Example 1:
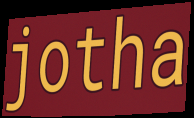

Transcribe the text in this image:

jotha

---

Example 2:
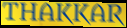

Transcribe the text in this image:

THAKKAR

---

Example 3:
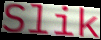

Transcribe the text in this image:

Slik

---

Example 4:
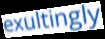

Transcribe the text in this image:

exultingly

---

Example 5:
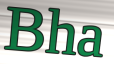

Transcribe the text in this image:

Bha